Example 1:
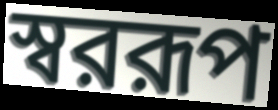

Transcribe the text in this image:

স্বররূপ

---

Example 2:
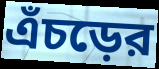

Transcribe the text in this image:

এঁচড়ের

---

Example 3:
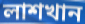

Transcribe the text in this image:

লাশখান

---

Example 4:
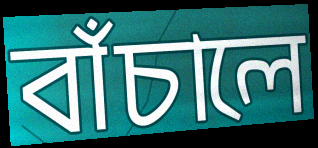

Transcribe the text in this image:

বাঁচালে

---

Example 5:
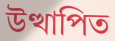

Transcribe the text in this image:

উত্থাপিত